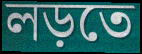
লড়তে